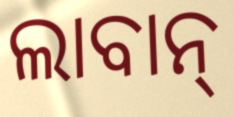
ଲାବାନ୍